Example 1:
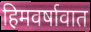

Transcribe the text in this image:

हिमवर्षावात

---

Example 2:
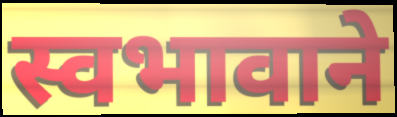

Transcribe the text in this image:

स्वभावाने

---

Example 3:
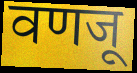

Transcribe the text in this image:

वणजू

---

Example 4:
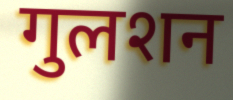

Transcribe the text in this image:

गुलशन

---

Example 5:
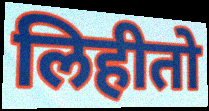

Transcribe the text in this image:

लिहीतो